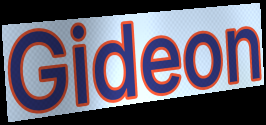
Gideon